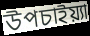
উপচাইয়্যা